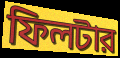
ফিলটার